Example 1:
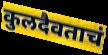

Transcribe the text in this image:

कुलदैवताचं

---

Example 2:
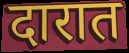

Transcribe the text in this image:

दारात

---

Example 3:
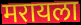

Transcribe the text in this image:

मरायला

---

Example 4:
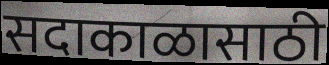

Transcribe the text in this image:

सदाकाळासाठी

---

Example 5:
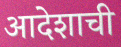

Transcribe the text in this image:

आदेशाची